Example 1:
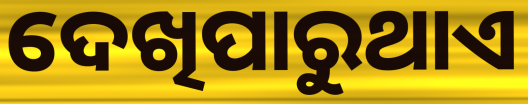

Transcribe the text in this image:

ଦେଖିପାରୁଥାଏ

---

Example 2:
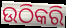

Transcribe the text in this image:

ଉଠିକରି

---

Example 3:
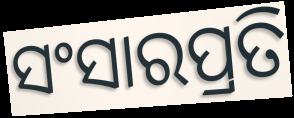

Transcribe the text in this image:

ସଂସାରପ୍ରତି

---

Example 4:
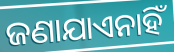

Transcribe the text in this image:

ଜଣାଯାଏନାହିଁ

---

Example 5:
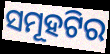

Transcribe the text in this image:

ସମୂହଟିର